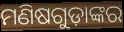
ମଣିଷଗୁଡ଼ାଙ୍କର